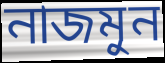
নাজমুন